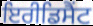
ਇਰੀਡਿਸੈਂਟ